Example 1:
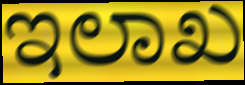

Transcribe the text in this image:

ಇಲಾಖ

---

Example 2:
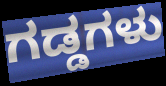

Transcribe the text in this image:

ಗಡ್ಡಗಳು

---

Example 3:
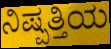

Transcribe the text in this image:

ನಿಷ್ಪತ್ತಿಯ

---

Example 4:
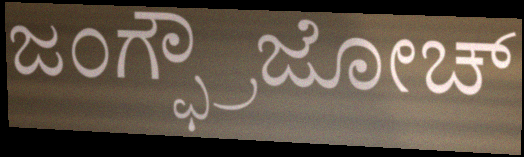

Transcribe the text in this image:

ಜಂಗ್ಫ್ರೌಜೋಚ್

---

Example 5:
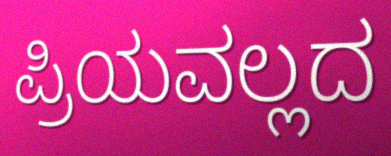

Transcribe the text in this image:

ಪ್ರಿಯವಲ್ಲದ